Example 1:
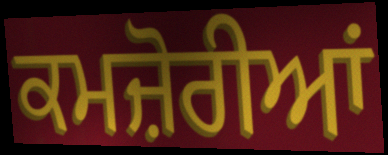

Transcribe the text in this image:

ਕਮਜ਼ੋਰੀਆਂ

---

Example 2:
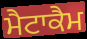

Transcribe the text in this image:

ਮੈਟਾਕੈਮ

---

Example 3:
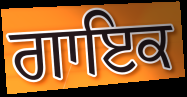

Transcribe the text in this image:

ਗਾਇਕ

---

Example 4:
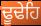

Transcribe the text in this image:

ਢੂਢੇਹਿ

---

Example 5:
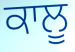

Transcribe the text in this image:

ਕਾਲੂ